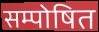
सम्पोषित